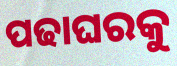
ପଢାଘରକୁ